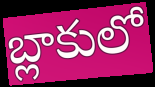
బ్లాకులో